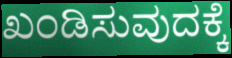
ಖಂಡಿಸುವುದಕ್ಕೆ